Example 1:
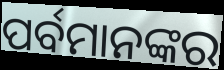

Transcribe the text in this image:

ପର୍ବମାନଙ୍କର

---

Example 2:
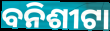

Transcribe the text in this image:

ବନିଶୀଟା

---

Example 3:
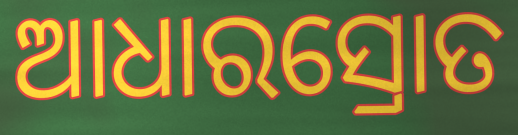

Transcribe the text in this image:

ଆଧାରସ୍ରୋତ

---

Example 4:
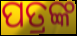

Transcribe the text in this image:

ପତ୍ରଙ୍କ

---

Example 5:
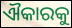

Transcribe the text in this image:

ଐକାରକୁ